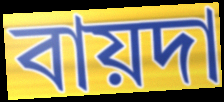
বায়দা